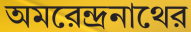
অমরেন্দ্রনাথের